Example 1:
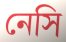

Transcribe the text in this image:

নেসি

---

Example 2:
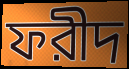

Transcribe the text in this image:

ফরীদ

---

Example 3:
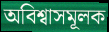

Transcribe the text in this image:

অবিশ্বাসমূলক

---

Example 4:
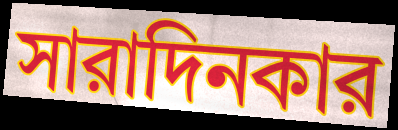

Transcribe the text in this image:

সারাদিনকার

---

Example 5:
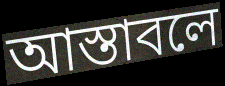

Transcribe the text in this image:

আস্তাবলে